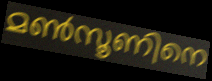
മൺസൂണിനെ